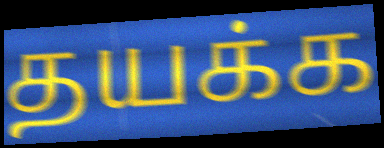
தயக்க